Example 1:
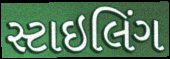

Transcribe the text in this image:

સ્ટાઇલિંગ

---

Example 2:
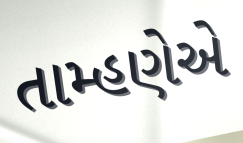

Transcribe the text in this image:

તામ્હણેએ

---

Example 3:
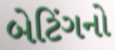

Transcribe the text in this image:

બેટિંગનો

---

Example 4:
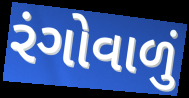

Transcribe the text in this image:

રંગોવાળું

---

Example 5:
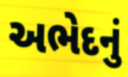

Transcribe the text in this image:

અભેદનું